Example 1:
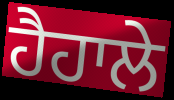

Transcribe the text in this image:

ਹੈਹਾਲੇ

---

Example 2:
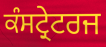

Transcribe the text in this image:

ਕੰਸਟ੍ਰੇਟਰਜ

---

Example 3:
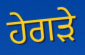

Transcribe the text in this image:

ਹੇਗੜੇ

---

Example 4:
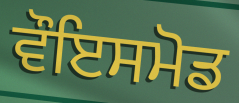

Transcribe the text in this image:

ਵੌਇਸਮੋਡ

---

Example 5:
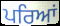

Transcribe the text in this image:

ਪਰਿਆਂ